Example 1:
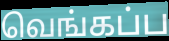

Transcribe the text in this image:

வெங்கப்ப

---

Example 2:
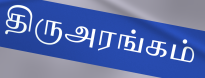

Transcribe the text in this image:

திருஅரங்கம்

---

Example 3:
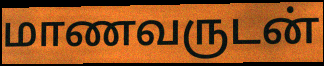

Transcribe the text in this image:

மாணவருடன்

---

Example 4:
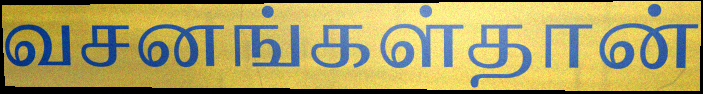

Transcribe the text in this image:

வசனங்கள்தான்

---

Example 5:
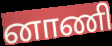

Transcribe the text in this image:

னாணி